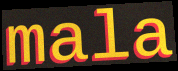
mala